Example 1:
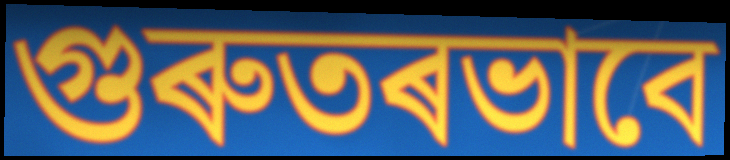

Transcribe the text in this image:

গুৰুতৰভাবে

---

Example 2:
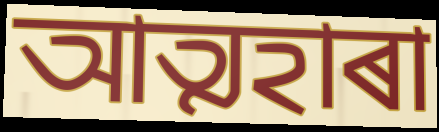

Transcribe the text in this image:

আত্মহাৰা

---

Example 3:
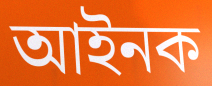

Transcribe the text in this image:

আইনক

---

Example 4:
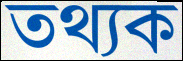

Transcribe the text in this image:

তথ্যক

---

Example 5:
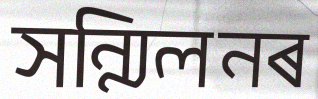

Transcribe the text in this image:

সন্মিলনৰ